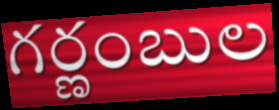
గర్ణంబుల